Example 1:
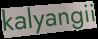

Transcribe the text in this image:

kalyangii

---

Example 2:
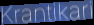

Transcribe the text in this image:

Krantikari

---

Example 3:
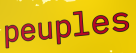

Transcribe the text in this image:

peuples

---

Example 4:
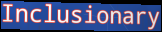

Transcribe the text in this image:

Inclusionary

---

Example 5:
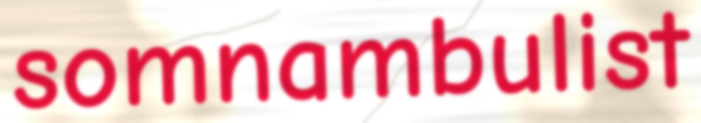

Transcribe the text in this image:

somnambulist